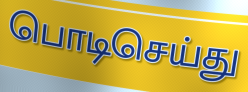
பொடிசெய்து